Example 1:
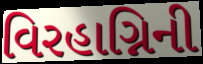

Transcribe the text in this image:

વિરહાગ્નિની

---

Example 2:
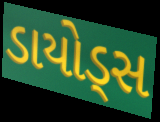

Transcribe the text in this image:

ડાયોડ્સ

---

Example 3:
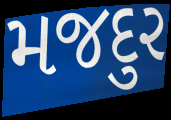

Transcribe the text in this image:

મજદુર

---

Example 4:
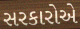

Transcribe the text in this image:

સરકારોએ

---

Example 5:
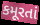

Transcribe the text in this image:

કમૂરતાં